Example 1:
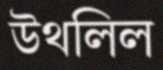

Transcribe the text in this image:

উথলিল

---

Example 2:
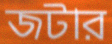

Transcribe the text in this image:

জটার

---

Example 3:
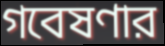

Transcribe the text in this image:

গবেষণার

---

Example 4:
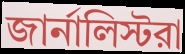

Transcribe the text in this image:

জার্নালিস্টরা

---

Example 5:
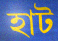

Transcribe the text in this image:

হাট